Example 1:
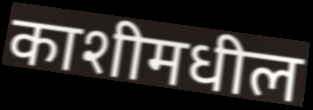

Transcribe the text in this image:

काशीमधील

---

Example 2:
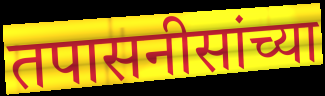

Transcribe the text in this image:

तपासनीसांच्या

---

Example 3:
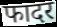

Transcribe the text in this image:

फादर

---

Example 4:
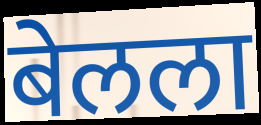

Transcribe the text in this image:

बेलला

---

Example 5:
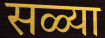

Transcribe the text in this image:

सळ्या